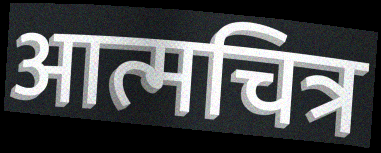
आत्मचित्र